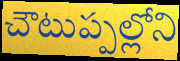
చౌటుప్పల్లోని